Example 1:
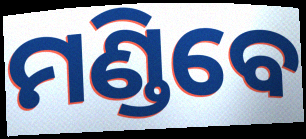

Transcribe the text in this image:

ମଣ୍ଡିବେ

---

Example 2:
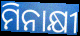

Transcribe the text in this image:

ମିନାକ୍ଷୀ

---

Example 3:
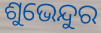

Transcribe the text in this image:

ଶୁଭେନ୍ଦୁର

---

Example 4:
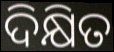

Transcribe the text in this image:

ଦିକ୍ଷିତ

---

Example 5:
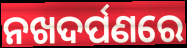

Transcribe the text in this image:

ନଖଦର୍ପଣରେ